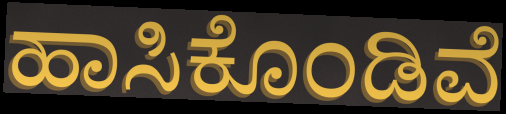
ಹಾಸಿಕೊಂಡಿವೆ